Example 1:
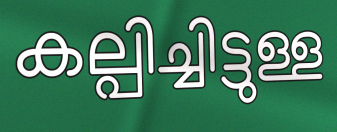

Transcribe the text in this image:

കല്പിച്ചിട്ടുള്ള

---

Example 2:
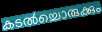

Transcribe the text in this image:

കടൽച്ചൊരുക്കും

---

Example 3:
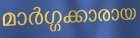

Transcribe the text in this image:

മാർഗ്ഗക്കാരായ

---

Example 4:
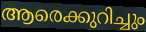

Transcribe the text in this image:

ആരെക്കുറിച്ചും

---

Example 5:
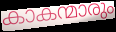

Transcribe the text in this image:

കാകന്മാരും